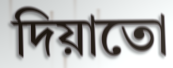
দিয়াতো